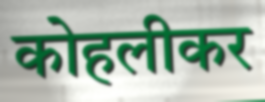
कोहलीकर